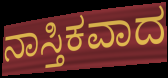
ನಾಸ್ತಿಕವಾದ